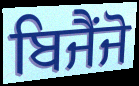
ਬਿਜੈਂਜੋ